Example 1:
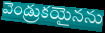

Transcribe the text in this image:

వెండ్రుకయైనను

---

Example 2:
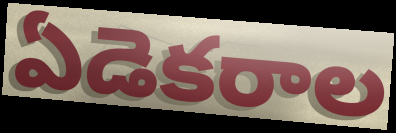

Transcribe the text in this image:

ఏడెకరాల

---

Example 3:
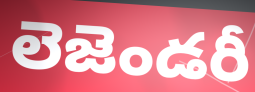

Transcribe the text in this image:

లెజెండరీ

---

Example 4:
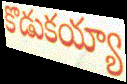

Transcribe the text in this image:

కొడుకయ్యా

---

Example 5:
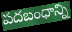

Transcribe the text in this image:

పదబంధాన్ని